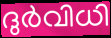
ദുർവിധി